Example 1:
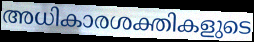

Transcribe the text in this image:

അധികാരശക്തികളുടെ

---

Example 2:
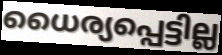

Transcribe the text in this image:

ധൈര്യപ്പെട്ടില്ല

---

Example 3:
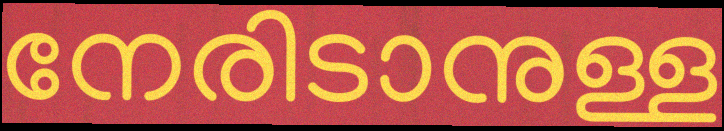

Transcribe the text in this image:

നേരിടാനുള്ള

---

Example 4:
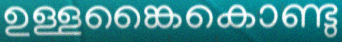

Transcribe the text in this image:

ഉള്ളങ്കൈകൊണ്ടു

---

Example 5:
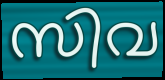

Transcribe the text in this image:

സിവ